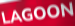
LAGOON